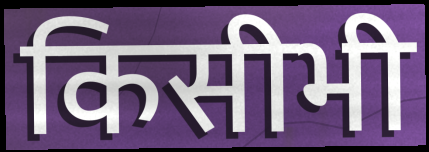
किसीभी